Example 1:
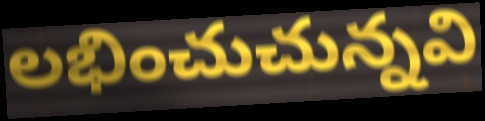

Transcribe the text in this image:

లభించుచున్నవి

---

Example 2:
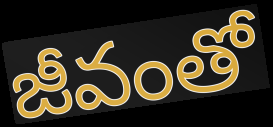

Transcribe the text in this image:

జీవంతో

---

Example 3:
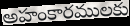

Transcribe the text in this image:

అహంకారములకు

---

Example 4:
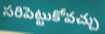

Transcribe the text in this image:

సరిపెట్టుకోవచ్చు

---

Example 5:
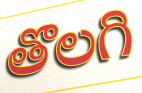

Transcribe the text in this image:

తొలగి